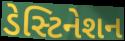
ડેસ્ટિનેશન